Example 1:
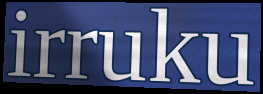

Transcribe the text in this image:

irruku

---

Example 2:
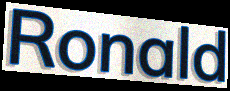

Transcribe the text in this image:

Ronald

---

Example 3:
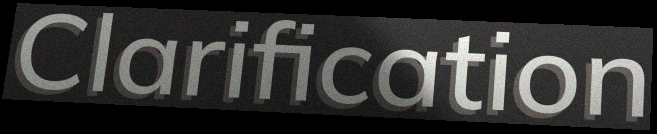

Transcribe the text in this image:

Clarification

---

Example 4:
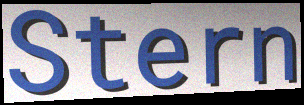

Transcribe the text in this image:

Stern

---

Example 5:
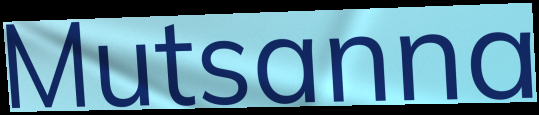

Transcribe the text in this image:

Mutsanna